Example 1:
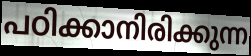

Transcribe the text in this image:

പഠിക്കാനിരിക്കുന്ന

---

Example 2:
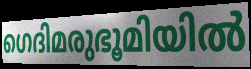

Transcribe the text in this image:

ഗെദിമരുഭൂമിയിൽ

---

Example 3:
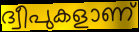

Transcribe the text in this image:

ദ്വീപുകളാണ്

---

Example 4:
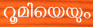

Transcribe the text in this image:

റൂമിയെയും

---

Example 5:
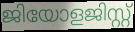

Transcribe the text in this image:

ജിയോളജിസ്റ്റ്